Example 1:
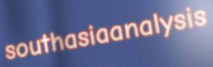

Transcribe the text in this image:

southasiaanalysis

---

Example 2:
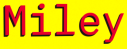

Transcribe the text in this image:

Miley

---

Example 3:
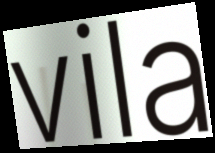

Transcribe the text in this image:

vila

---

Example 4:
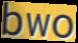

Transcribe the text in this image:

bwo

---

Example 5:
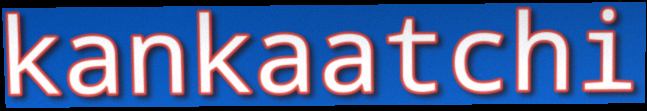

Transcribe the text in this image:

kankaatchi